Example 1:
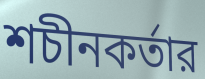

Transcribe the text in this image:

শচীনকর্তার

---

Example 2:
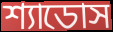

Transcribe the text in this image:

শ্যাডোস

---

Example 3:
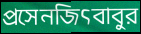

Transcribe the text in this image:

প্রসেনজিৎবাবুর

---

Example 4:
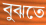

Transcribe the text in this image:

বুঝতে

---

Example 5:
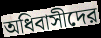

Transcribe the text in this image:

অধিবাসীদের